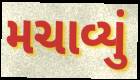
મચાવ્યું